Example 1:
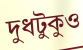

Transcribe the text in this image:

দুধটুকুও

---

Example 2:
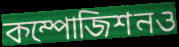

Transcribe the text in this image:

কম্পোজিশনও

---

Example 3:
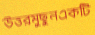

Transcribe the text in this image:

উত্তরমুছুনএকটি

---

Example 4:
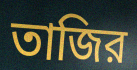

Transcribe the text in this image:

তাজির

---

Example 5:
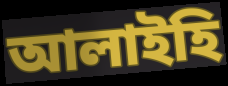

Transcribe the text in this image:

আলাইহি